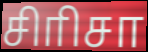
சிரிசா